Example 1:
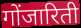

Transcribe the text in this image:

गोंजारिती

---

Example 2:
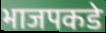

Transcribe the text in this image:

भाजपकडे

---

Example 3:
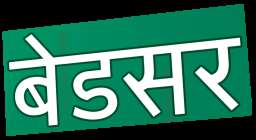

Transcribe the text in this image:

बेडसर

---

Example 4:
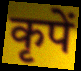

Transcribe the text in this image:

कृपें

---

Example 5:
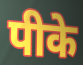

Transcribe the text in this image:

पीके